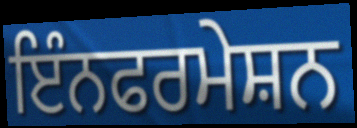
ਇੰਨਫਰਮੇਸ਼ਨ